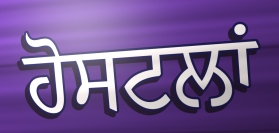
ਹੋਸਟਲਾਂ